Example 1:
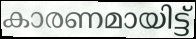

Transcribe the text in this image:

കാരണമായിട്ട്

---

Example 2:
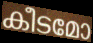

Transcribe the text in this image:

കീടമോ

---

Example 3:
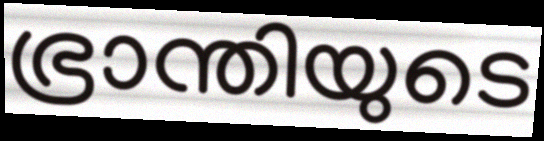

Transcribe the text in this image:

ഭ്രാന്തിയുടെ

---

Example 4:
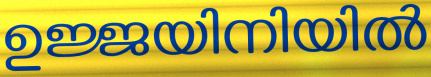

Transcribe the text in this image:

ഉജ്ജയിനിയിൽ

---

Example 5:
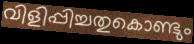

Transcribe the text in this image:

വിളിപ്പിച്ചതുകൊണ്ടും